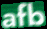
afb